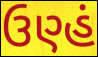
ઉણ્હં